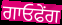
ਗਾਓਫੇਂਗ